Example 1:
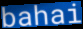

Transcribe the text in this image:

bahai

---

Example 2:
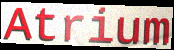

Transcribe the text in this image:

Atrium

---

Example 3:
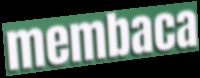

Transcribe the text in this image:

membaca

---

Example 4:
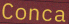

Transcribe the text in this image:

Conca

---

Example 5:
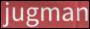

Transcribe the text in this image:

jugman